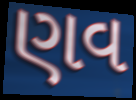
ણવ